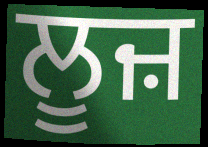
ਲੂਜ਼